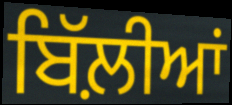
ਬਿੱਲ਼ੀਆਂ